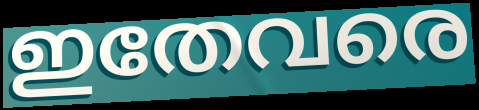
ഇതേവരെ